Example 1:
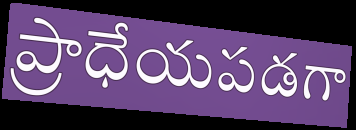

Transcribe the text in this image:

ప్రాధేయపడగా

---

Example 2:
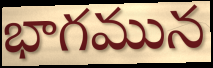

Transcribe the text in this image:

భాగమున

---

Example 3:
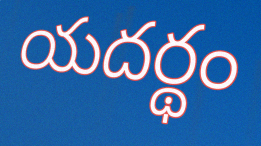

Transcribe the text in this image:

యదర్థం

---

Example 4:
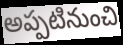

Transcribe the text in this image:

అప్పటినుంచి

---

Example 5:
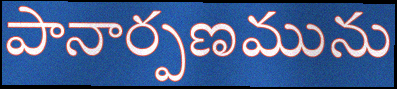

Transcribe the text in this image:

పానార్పణమును